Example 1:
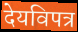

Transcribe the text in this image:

देयविपत्र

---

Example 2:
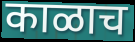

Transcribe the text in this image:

काळाच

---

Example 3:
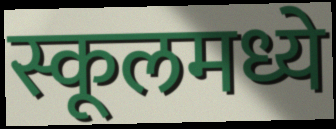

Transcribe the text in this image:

स्कूलमध्ये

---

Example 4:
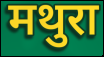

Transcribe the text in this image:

मथुरा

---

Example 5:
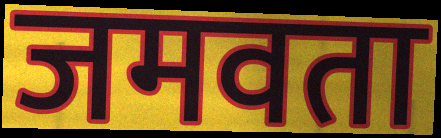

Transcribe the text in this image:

जमवता